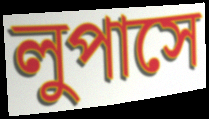
লুপাসে